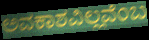
ಅವಕಾಶವಿಲ್ಲವೆಂಬ